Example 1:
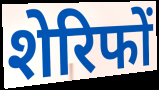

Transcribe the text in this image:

शेरिफों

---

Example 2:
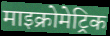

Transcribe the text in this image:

माइक्रोमेट्रिक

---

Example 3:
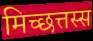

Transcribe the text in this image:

मिच्छत्तस्स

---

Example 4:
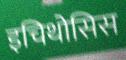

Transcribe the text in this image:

इचिथोसिस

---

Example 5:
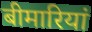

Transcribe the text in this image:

बीमारियां